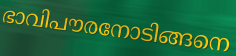
ഭാവിപൗരനോടിങ്ങനെ